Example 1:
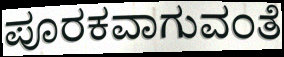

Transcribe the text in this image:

ಪೂರಕವಾಗುವಂತೆ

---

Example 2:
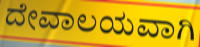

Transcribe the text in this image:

ದೇವಾಲಯವಾಗಿ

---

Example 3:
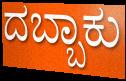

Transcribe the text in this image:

ದಬ್ಬಾಕು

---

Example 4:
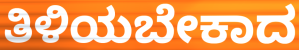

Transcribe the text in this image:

ತಿಳಿಯಬೇಕಾದ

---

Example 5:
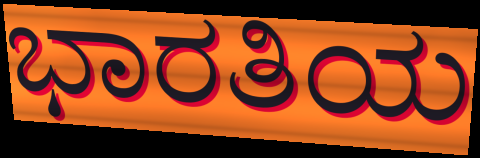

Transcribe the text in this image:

ಭಾರತಿಯ